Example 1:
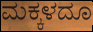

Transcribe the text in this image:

ಮಕ್ಕಳದೂ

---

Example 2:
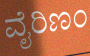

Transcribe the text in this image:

ವೈರಿಣಂ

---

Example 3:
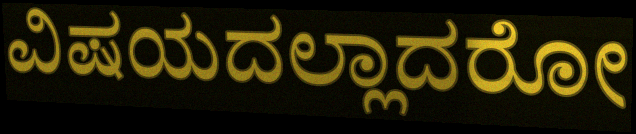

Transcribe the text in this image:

ವಿಷಯದಲ್ಲಾದರೋ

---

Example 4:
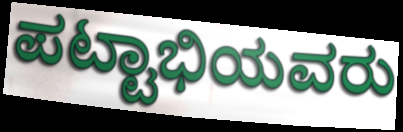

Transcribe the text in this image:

ಪಟ್ಟಾಭಿಯವರು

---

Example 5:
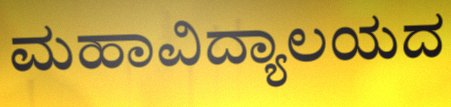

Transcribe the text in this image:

ಮಹಾವಿದ್ಯಾಲಯದ